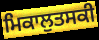
ਮਿਕਾਲੁਤਸਕੀ